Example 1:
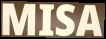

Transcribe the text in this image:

MISA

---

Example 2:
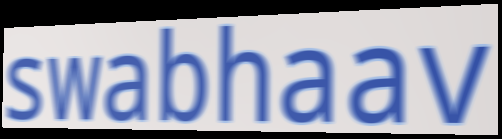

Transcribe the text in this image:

swabhaav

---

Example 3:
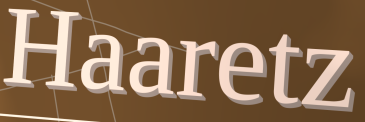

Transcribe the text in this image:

Haaretz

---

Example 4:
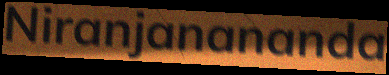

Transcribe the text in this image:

Niranjanananda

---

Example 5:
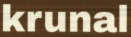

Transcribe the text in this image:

krunal